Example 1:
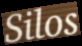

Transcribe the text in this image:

Silos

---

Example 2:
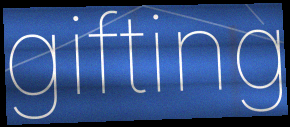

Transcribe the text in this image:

gifting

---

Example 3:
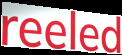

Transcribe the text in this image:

reeled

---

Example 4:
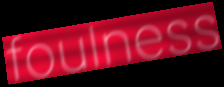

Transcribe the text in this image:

foulness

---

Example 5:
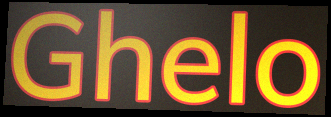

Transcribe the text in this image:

Ghelo